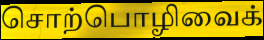
சொற்பொழிவைக்